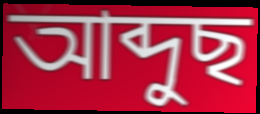
আব্দুছ